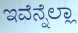
ಇವೆನ್ನೆಲ್ಲಾ